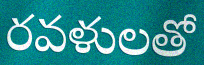
రవళులతో